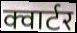
क्‍वार्टर